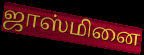
ஜாஸ்மினை